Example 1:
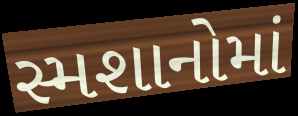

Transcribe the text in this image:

સ્મશાનોમાં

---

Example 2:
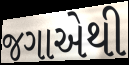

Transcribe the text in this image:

જગાએથી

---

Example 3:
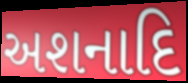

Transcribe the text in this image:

અશનાદિ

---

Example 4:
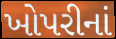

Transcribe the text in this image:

ખોપરીનાં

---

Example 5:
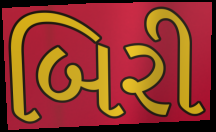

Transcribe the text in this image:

બિરી